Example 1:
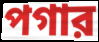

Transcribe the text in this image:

পগার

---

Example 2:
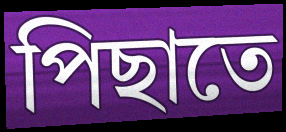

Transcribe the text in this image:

পিছাতে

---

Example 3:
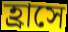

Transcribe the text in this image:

হ্রাসে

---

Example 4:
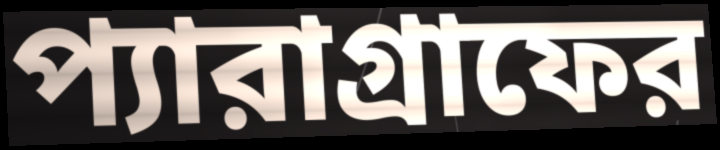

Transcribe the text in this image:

প্যারাগ্রাফের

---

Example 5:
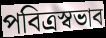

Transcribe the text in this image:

পবিত্রস্বভাব